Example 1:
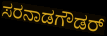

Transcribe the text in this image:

ಸರನಾಡಗೌಡರ್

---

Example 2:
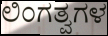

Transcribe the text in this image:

ಲಿಂಗತ್ವಗಳ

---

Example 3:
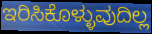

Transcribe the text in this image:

ಇರಿಸಿಕೊಳ್ಳುವುದಿಲ್ಲ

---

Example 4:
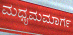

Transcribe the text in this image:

ಮಧ್ಯಮಮಾರ್ಗ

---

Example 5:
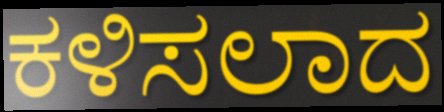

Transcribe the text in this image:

ಕಳಿಸಲಾದ